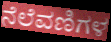
ನೆಲೆವಣಿಗಳ